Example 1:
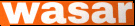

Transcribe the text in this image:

wasar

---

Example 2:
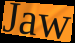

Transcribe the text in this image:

Jaw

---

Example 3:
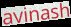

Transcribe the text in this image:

avinash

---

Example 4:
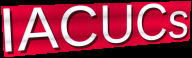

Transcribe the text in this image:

IACUCs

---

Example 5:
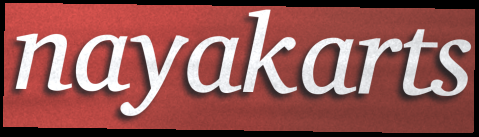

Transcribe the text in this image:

nayakarts